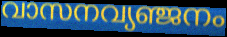
വാസനവ്യഞ്ജനം